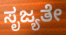
ಸೃಜ್ಯತೇ